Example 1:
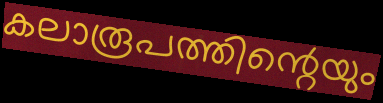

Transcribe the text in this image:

കലാരൂപത്തിന്റെയും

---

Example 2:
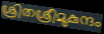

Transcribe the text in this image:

ശ്രിതശ്രീമുകുന്ദം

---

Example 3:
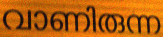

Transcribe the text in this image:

വാണിരുന്ന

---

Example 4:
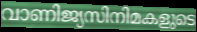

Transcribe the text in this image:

വാണിജ്യസിനിമകളുടെ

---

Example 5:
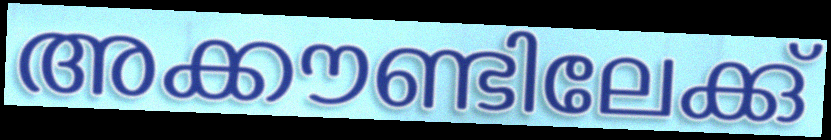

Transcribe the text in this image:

അക്കൗണ്ടിലേക്കു്